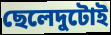
ছেলেদুটোই